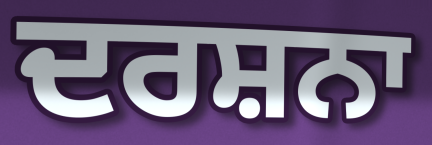
ਦਰਸ਼ਨਾ